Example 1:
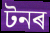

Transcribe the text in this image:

টনৰ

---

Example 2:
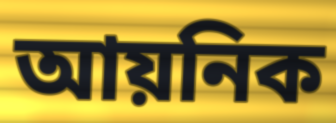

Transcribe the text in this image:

আয়নিক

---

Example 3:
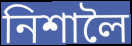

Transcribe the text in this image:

নিশালৈ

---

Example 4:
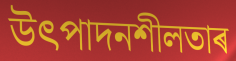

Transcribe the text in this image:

উৎপাদনশীলতাৰ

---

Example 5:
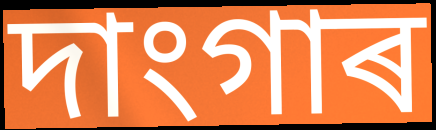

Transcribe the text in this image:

দাংগাৰ